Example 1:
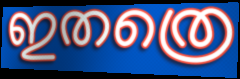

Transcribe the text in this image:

ഇതത്രെ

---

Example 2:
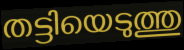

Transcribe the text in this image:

തട്ടിയെടുത്തു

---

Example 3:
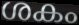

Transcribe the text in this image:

ശകം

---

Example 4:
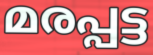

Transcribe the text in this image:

മരപ്പട്ട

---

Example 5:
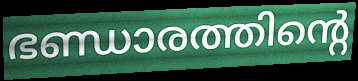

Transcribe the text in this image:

ഭണ്ഡാരത്തിന്റെ